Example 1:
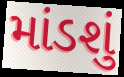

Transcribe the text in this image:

માંડશું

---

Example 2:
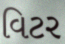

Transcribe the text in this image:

વિટર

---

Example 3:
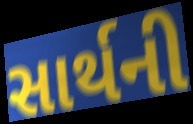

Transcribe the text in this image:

સાર્થની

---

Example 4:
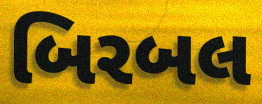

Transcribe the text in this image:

બિરબલ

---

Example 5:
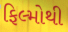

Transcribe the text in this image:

ફિલ્મોથી